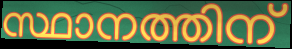
സ്ഥാനത്തിന്